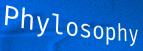
Phylosophy